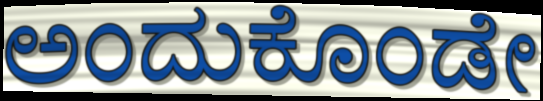
ಅಂದುಕೊಂಡೇ